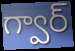
గ్వార్